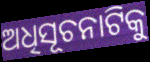
ଅଧିସୂଚନାଟିକୁ